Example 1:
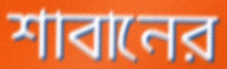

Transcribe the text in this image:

শাবানের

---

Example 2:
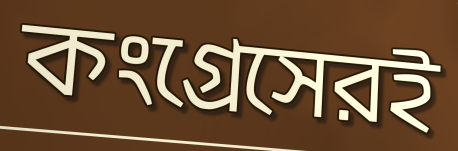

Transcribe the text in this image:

কংগ্রেসেরই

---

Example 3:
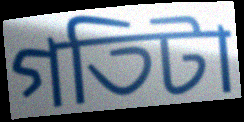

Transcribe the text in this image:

গতিটা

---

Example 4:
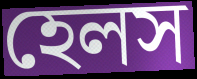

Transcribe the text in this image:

হেলস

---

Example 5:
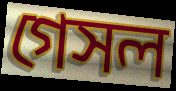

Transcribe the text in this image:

গেসল